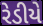
રેડીયે